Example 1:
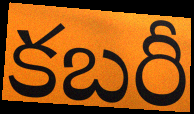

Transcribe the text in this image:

కబరీ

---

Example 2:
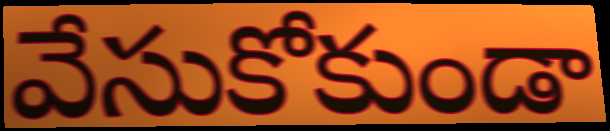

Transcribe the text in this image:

వేసుకోకుండా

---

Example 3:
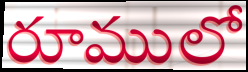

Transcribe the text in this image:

రూములో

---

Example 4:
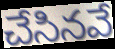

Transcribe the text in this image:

చేసినవే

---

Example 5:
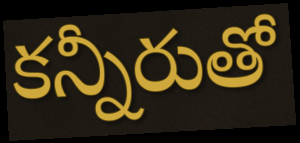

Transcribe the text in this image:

కన్నీరుతో